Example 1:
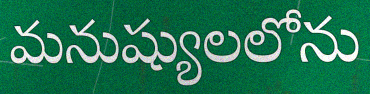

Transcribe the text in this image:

మనుష్యులలోను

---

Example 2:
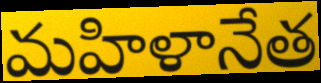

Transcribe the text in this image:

మహిళానేత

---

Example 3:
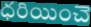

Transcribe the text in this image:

ధరియించె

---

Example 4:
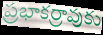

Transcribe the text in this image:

ప్రభాకర్రావుకు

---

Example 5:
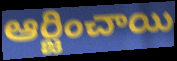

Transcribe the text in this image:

ఆర్జించాయి